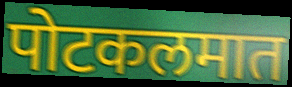
पोटकलमात